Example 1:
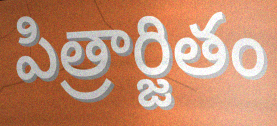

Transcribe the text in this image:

పిత్రార్జితం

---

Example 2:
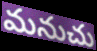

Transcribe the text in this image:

మనుచు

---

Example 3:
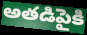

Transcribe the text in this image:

అతడిపైకి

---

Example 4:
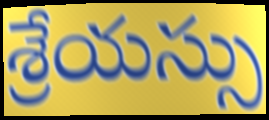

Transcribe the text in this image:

శ్రేయస్సు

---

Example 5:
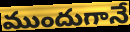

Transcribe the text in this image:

ముందుగానే